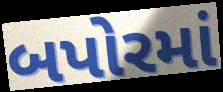
બપોરમાં